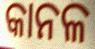
କାନଳ